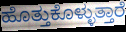
ಹೊತ್ತುಕೊಳ್ಳುತ್ತಾರೆ